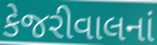
કેજરીવાલનાં